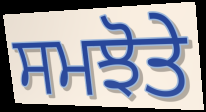
ਸਮਝੋਤੇ